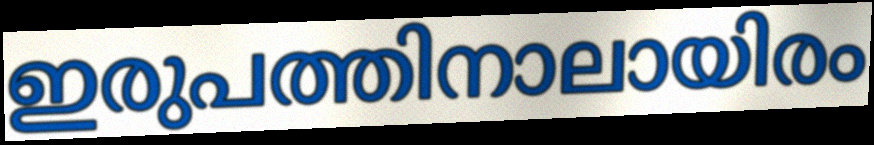
ഇരുപത്തിനാലായിരം